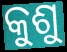
କୁଶୁ